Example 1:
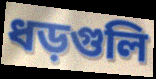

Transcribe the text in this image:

ধড়গুলি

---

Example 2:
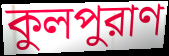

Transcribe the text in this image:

কুলপুরাণ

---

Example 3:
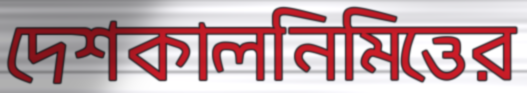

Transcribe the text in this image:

দেশকালনিমিত্তের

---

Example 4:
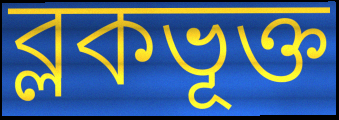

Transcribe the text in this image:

ব্লকভূক্ত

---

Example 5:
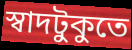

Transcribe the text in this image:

স্বাদটুকুতে